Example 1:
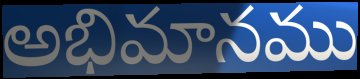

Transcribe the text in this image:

అభిమానము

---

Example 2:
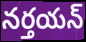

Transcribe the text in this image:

నర్తయన్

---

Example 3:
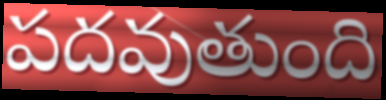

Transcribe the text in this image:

పదవుతుంది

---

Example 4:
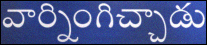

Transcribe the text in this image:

వార్నింగిచ్చాడు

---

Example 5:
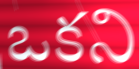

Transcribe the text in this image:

ఒకని